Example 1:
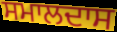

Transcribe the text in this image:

ਸਮਾਲਦਾਸ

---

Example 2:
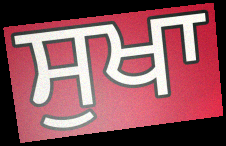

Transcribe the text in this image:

ਸੁਖਾ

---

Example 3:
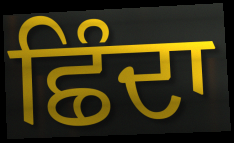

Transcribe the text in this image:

ਛਿੰਦਾ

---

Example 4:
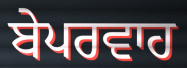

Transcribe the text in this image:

ਬੇਪਰਵਾਹ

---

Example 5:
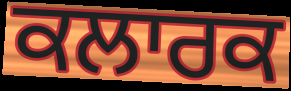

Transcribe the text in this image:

ਕਲਾਰਕ